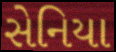
સેનિયા